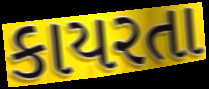
કાયરતા